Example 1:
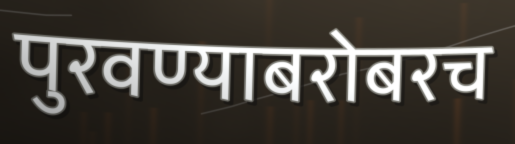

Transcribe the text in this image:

पुरवण्याबरोबरच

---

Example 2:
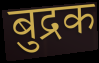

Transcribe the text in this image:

बुद्रक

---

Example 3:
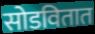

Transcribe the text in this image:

सोडवितात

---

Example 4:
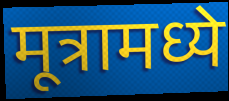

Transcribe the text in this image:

मूत्रामध्ये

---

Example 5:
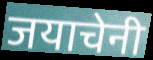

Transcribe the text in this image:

जयाचेनी